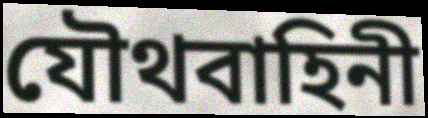
যৌথবাহিনী